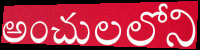
అంచులలోని